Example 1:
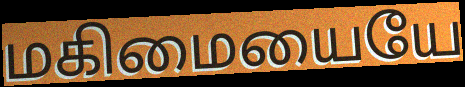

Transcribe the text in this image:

மகிமையையே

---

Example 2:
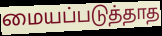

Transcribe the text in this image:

மையப்படுத்தாத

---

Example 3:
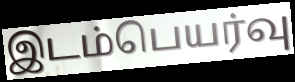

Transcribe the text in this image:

இடம்பெயர்வு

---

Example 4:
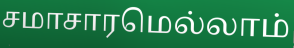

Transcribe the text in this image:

சமாசாரமெல்லாம்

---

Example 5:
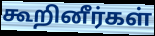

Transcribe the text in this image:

கூறினீர்கள்